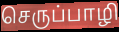
செருப்பாழி